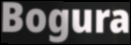
Bogura